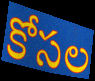
కోసల